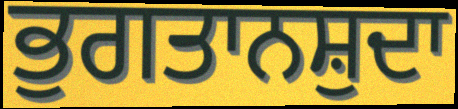
ਭੁਗਤਾਨਸ਼ੁਦਾ